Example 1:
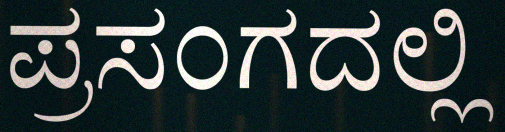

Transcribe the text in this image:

ಪ್ರಸಂಗದಲ್ಲಿ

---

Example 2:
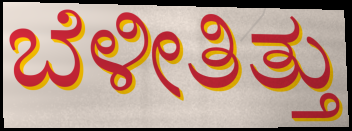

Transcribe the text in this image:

ಬೆಳೀತಿತ್ತು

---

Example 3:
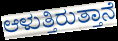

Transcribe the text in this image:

ಆಳುತ್ತಿರುತ್ತಾನೆ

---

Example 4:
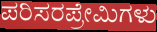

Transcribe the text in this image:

ಪರಿಸರಪ್ರೇಮಿಗಳು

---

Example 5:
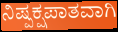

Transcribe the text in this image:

ನಿಷ್ಪಕ್ಷಪಾತವಾಗಿ